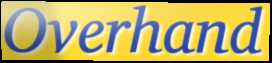
Overhand